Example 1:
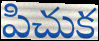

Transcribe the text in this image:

పిచుక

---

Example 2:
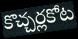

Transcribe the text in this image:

కొచ్చర్లకోట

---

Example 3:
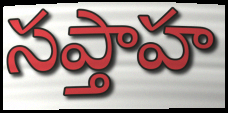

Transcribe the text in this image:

సప్తాహ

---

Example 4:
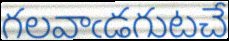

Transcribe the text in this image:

గలవాఁడగుటచే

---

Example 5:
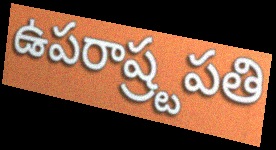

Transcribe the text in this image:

ఉపరాష్ర్టపతి